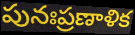
పునఃప్రణాళిక